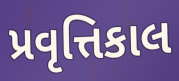
પ્રવૃત્તિકાલ